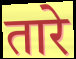
तारे